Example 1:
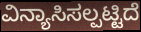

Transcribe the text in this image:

ವಿನ್ಯಾಸಿಸಲ್ಪಟ್ಟಿದೆ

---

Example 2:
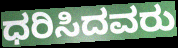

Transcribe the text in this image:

ಧರಿಸಿದವರು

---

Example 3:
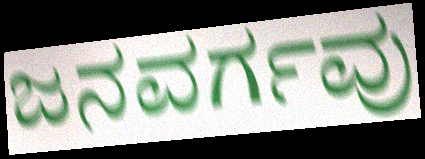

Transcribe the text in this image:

ಜನವರ್ಗವು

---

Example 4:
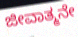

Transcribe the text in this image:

ಜೀವಾತ್ಮನೇ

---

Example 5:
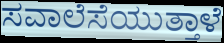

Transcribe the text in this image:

ಸವಾಲೆಸೆಯುತ್ತಾಳೆ